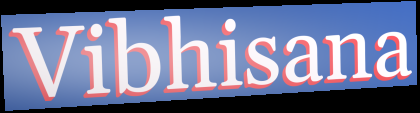
Vibhisana